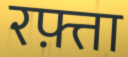
रफ़्ता